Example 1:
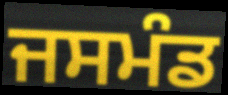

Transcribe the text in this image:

ਜਸਮੰਡ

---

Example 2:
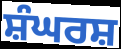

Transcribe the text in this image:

ਸ਼ੰਘਰਸ਼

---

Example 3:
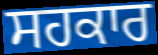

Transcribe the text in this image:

ਸਹਕਾਰ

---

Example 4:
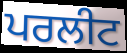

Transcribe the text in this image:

ਪਰਲੀਟ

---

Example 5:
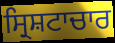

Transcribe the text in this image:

ਸ੍ਰਿਸ਼ਟਾਚਾਰ